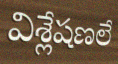
విశ్లేషణలే